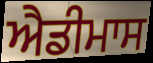
ਐਡੀਮਾਸ